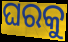
ଘରକୁ